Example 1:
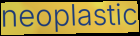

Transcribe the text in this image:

neoplastic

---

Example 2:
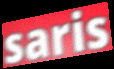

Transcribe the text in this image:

saris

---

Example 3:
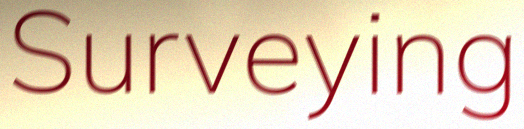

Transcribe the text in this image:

Surveying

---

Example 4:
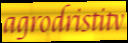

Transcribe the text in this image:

agrodristitv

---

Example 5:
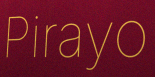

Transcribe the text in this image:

Pirayo